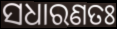
ସଧାରଣତଃ